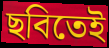
ছবিতেই